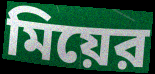
মিয়ের